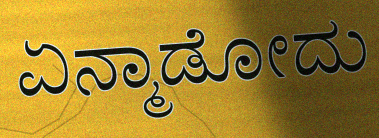
ಏನ್ಮಾಡೋದು